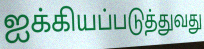
ஐக்கியப்படுத்துவது